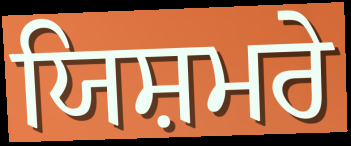
ਯਿਸ਼ਮਰੇ